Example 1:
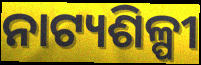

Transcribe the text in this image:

ନାଟ୍ୟଶିଳ୍ପୀ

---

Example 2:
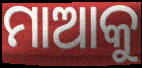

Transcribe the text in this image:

ମାଆକୁ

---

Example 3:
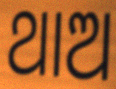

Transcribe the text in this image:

ଥାଅ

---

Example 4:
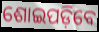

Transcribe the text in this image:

ଶୋଇପଡ଼ିବେ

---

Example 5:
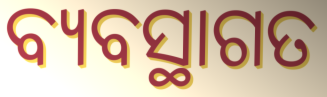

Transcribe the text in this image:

ବ୍ଯବସ୍ଥାଗତ